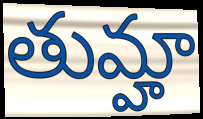
తుమ్హా